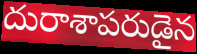
దురాశాపరుడైన